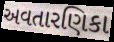
અવતારણિકા